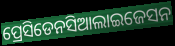
ପ୍ରେସିଡେନସିଆଲାଇଜେସନ